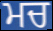
ਮਚ